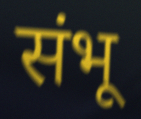
संभू